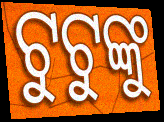
ଟୁଟୁଙ୍କୁ